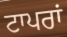
ਟਾਪਰਾਂ